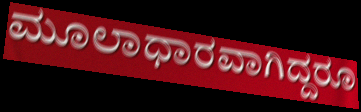
ಮೂಲಾಧಾರವಾಗಿದ್ದರೂ